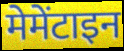
मेमेंटाइन